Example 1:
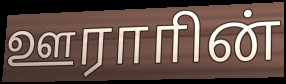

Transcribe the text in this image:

ஊராரின்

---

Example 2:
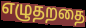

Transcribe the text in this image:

எழுதறதை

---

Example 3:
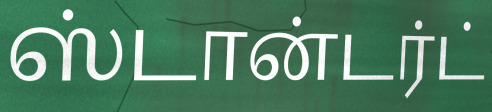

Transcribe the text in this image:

ஸ்டான்டர்ட்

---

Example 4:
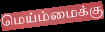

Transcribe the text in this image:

மெய்ம்மைக்கு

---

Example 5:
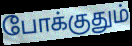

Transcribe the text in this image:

போக்குதும்